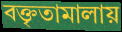
বক্তৃতামালায়